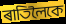
ৰাতিলৈকে